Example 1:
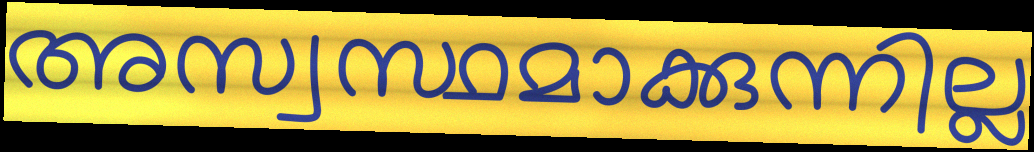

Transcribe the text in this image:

അസ്വസ്ഥമാക്കുന്നില്ല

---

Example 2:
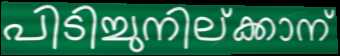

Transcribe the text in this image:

പിടിച്ചുനില്ക്കാന്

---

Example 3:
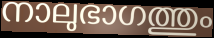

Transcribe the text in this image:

നാലുഭാഗത്തും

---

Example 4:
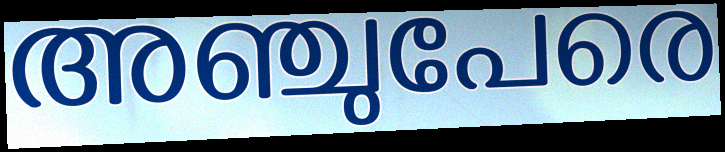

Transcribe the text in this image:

അഞ്ചുപേരെ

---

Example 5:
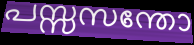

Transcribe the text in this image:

പസ്സസന്തോ